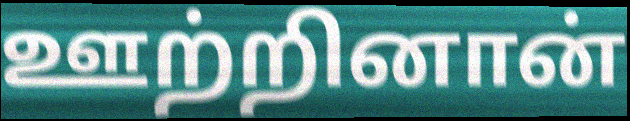
ஊற்றினான்